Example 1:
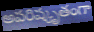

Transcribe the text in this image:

అపరిష్కృతంగా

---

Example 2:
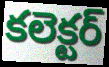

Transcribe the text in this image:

కలెక్టర్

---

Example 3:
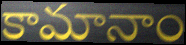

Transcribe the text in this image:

కామానాం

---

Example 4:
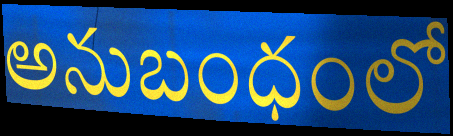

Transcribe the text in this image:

అనుబంధంలో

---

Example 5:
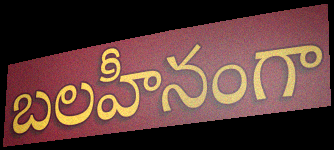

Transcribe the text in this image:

బలహీనంగా